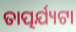
ତାତ୍ପର୍ଯ୍ୟଟା